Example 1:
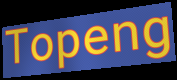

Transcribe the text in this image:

Topeng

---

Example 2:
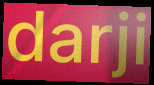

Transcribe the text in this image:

darji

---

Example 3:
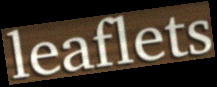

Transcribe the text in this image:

leaflets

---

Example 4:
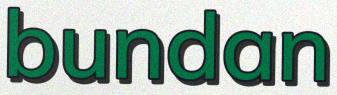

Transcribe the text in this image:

bundan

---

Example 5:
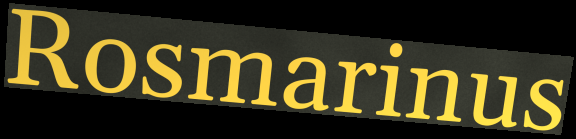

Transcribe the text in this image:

Rosmarinus